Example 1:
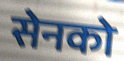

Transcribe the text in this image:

सेनको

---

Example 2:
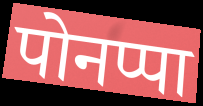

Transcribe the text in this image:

पोनप्पा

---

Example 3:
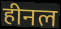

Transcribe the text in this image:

हीनल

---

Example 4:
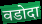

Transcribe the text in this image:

वडोदा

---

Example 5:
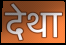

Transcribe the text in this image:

देथा